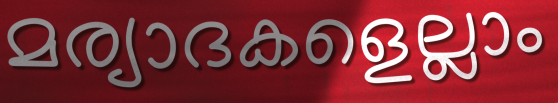
മര്യാദകളെല്ലാം